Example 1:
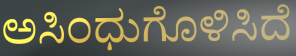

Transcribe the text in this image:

ಅಸಿಂಧುಗೊಳಿಸಿದೆ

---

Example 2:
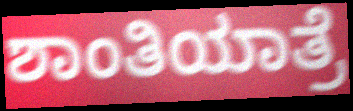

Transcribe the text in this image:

ಶಾಂತಿಯಾತ್ರೆ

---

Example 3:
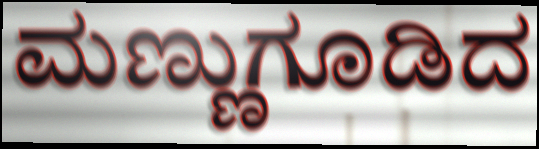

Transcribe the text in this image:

ಮಣ್ಣುಗೂಡಿದ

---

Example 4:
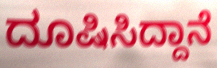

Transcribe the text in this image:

ದೂಷಿಸಿದ್ದಾನೆ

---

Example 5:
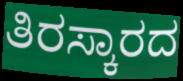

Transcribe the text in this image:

ತಿರಸ್ಕಾರದ